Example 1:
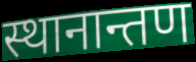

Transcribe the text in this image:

स्थानान्तण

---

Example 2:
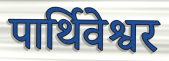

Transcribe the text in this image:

पार्थिवेश्वर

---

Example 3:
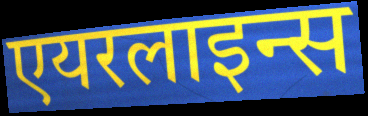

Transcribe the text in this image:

एयरलाइन्स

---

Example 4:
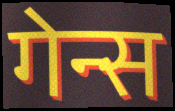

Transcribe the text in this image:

गेन्स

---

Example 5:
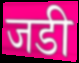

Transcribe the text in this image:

जडी